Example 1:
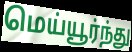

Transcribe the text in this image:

மெய்யூர்ந்து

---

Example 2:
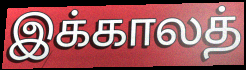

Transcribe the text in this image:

இக்காலத்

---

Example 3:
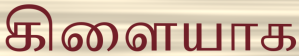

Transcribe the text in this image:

கிளையாக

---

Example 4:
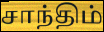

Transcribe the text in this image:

சாந்திம்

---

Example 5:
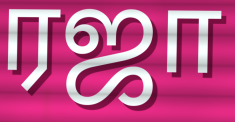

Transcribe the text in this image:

ரஜா